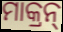
ମାକ୍ରନ୍